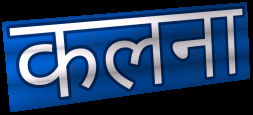
कलना